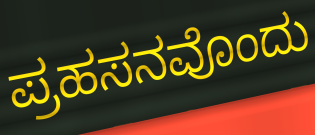
ಪ್ರಹಸನವೊಂದು